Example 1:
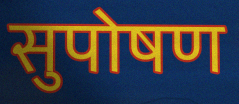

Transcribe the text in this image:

सुपोषण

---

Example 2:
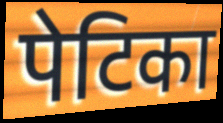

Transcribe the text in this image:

पेटिका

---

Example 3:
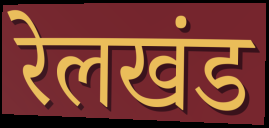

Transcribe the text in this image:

रेलखंड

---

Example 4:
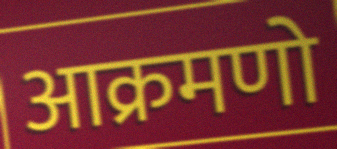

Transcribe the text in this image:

आक्रमणो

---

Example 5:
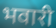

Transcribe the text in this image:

भवारी